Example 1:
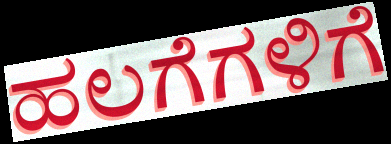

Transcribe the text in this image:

ಹಲಗೆಗಳಿಗೆ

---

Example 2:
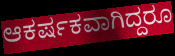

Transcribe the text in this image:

ಆಕರ್ಷಕವಾಗಿದ್ದರೂ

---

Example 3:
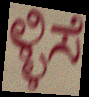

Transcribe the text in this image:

ಳ್ಳಿಸೆ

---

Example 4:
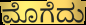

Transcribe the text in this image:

ಮೊಗೆದು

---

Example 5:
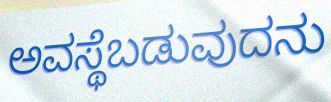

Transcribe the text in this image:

ಅವಸ್ಥೆಬಡುವುದನು